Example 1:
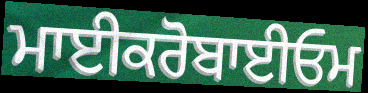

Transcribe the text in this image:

ਮਾਈਕਰੋਬਾਈਓਮ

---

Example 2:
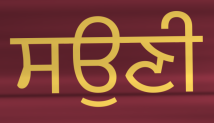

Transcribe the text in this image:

ਸਉਣੀ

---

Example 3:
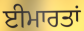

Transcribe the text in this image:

ਈਮਾਰਤਾਂ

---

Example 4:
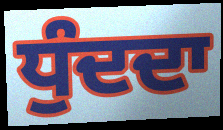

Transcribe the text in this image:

ਧੁੰਦਦਾ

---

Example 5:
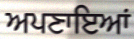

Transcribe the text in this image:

ਅਪਣਾਇਆਂ